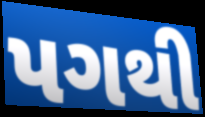
પગથી